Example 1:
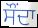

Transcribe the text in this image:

ਸੌਂਦਾ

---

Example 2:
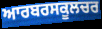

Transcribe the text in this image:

ਆਰਬਰਸਕੂਲਚਰ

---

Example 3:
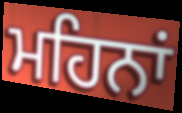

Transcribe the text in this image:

ਮਹਿਨਾਂ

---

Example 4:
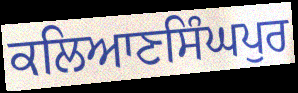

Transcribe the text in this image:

ਕਲਿਆਣਸਿੰਘਪੁਰ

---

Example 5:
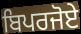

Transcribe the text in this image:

ਬਿਪਰਜੋਏ